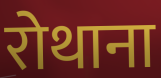
रोथाना